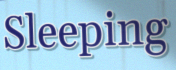
Sleeping